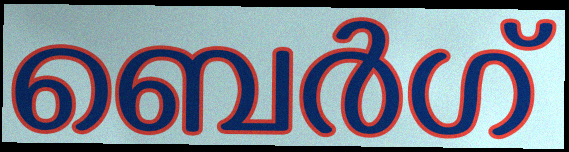
ബെർഗ്